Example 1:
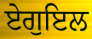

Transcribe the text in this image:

ਏਗੁਇਲ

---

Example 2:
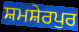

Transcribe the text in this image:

ਸ਼ਮਸ਼ੇਰਪੁਰ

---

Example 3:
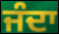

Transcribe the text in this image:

ਜੰਦਾ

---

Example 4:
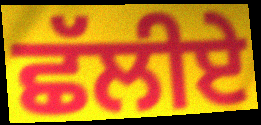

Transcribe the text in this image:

ਛੱਲੀਏ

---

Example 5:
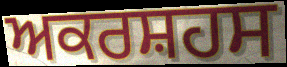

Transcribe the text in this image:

ਅਕਰਸ਼ਹਸ